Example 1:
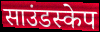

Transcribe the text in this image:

साउंडस्केप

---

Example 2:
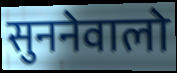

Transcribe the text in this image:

सुननेवालो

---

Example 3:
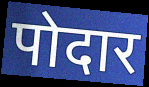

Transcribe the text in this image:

पोदार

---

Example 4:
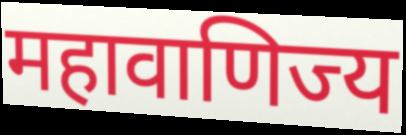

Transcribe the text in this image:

महावाणिज्य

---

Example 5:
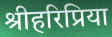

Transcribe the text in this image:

श्रीहरिप्रिया